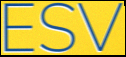
ESV